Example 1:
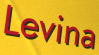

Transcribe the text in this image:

Levina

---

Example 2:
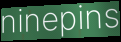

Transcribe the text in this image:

ninepins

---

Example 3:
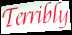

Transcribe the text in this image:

Terribly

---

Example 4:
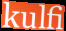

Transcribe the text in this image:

kulfi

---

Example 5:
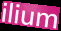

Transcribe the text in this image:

ilium